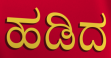
ಹಡಿದ